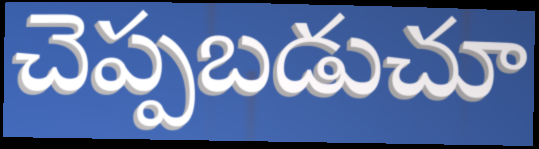
చెప్పబడుచూ